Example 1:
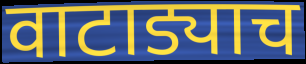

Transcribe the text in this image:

वाटाड्याच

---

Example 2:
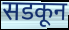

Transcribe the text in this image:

सडकून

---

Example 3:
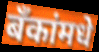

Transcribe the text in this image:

बँकांमधे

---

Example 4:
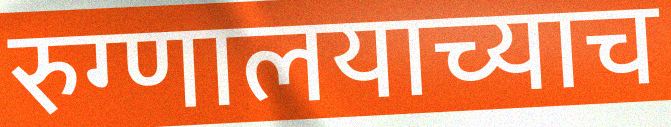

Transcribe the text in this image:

रुग्णालयाच्याच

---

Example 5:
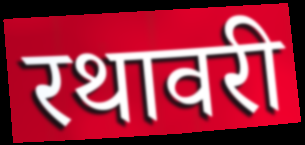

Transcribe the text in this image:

रथावरी